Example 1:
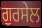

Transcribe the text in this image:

ਗੁਰਸੇਲ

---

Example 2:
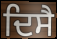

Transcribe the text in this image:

ਦਿਸੈ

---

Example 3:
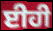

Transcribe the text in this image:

ਈਹੀ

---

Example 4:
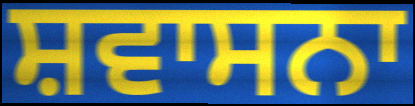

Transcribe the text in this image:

ਸ਼ਵਾਸਨਾ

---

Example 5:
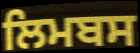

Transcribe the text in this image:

ਲਿਮਬਸ